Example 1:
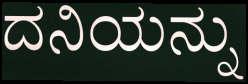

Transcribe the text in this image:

ದನಿಯನ್ನು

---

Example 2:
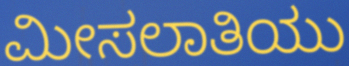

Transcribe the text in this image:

ಮೀಸಲಾತಿಯು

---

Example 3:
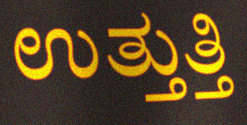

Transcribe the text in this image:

ಉತ್ತುತ್ತಿ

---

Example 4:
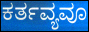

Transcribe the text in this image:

ಕರ್ತವ್ಯವೂ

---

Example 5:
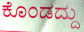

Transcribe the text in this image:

ಕೊಂಡದ್ದು